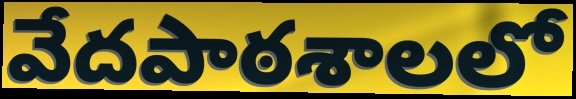
వేదపాఠశాలలో